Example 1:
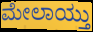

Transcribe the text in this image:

ಮೇಲಾಯ್ತು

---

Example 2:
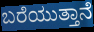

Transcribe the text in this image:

ಬರೆಯುತ್ತಾನೆ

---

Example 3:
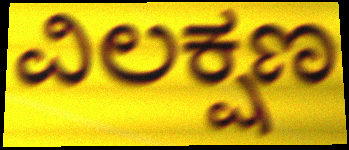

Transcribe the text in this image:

ವಿಲಕ್ಷಣ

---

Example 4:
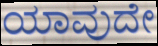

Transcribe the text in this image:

ಯಾವುದೇ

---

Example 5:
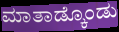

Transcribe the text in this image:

ಮಾತಾಡ್ಕೊಂಡು